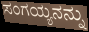
ಸಂಗಯ್ಯನನ್ನು